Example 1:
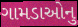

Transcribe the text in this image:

ગામડાઓનુ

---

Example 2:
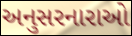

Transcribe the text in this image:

અનુસરનારાઓ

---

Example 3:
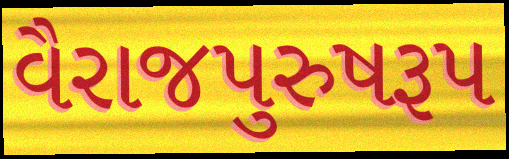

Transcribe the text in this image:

વૈરાજપુરુષરૂપ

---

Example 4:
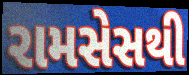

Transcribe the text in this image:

રામસેસથી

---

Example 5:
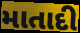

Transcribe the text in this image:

માતાદી